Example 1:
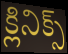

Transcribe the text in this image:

క్లినిక్స్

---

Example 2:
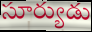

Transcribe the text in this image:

సూర్యుడు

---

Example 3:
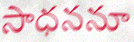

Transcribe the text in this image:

సాధననూ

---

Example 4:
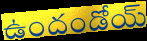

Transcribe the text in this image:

ఉందండోయ్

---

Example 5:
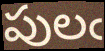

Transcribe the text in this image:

పులఁ